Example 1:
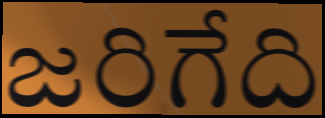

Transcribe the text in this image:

జరిగేది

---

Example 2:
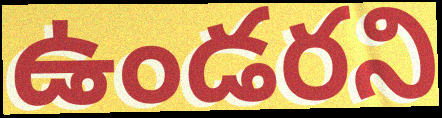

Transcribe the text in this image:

ఉండరని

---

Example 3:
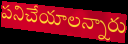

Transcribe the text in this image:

పనిచేయాలన్నారు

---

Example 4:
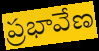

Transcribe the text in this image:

ప్రభావేణ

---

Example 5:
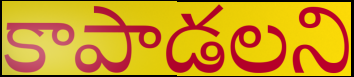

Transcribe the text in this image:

కాపాడలని